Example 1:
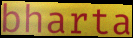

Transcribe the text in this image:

bharta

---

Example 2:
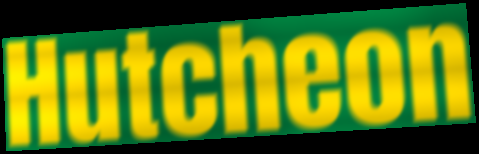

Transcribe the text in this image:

Hutcheon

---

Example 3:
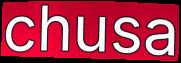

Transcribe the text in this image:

chusa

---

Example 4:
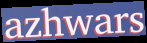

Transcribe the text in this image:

azhwars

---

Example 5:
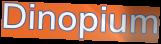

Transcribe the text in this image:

Dinopium